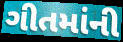
ગીતમાંની